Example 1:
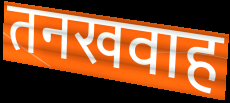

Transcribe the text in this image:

तनखवाह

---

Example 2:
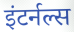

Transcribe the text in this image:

इंटर्नल्स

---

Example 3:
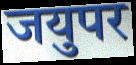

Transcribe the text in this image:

जयुपर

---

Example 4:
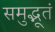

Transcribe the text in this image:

समुद्भूतं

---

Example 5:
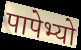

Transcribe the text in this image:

पापेभ्यो